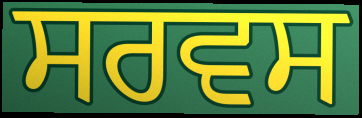
ਸਰਵਸ